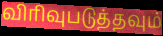
விரிவுபடுத்தவும்